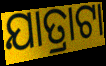
ଯାତ୍ରାଟା